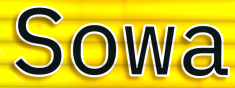
Sowa